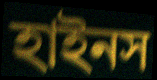
হাইনস